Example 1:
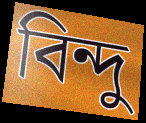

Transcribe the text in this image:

বিন্দু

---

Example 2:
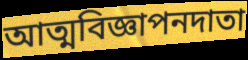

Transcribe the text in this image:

আত্মবিজ্ঞাপনদাতা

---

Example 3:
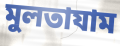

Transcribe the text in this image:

মুলতাযাম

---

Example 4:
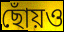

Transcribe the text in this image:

ছোঁয়ও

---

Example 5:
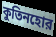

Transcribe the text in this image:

কুতিনহোর